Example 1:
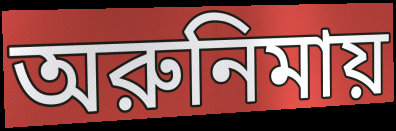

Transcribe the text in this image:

অরুনিমায়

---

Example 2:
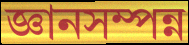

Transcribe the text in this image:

জ্ঞানসম্পন্ন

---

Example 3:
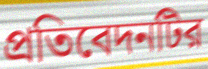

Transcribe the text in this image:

প্রতিবেদনটির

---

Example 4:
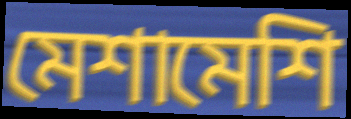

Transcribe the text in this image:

মেশামেশি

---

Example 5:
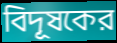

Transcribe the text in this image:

বিদূষকের